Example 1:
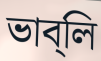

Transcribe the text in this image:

ভাব্‌লি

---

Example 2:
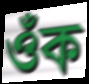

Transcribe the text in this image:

ওঁক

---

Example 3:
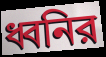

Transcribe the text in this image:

ধ্বনির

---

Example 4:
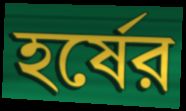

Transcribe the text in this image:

হর্ষের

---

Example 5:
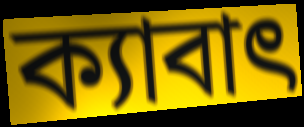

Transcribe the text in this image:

ক্যাবাৎ